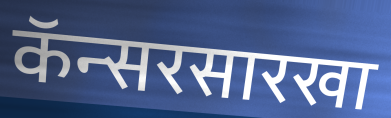
कॅन्सरसारखा